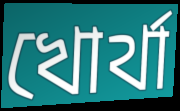
খোৰ্থা